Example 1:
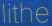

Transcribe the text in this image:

lithe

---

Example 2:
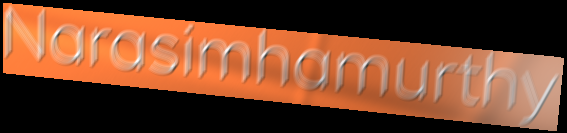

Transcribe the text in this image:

Narasimhamurthy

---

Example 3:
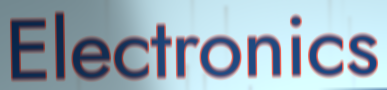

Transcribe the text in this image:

Electronics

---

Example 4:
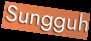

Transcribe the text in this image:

Sungguh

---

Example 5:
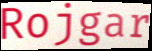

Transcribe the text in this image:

Rojgar